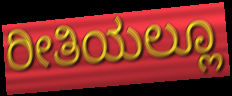
ರೀತಿಯಲ್ಲೂ